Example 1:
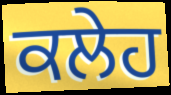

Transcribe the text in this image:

ਕਲੇਹ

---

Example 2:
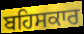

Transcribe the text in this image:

ਬਹਿਸਕਾਰ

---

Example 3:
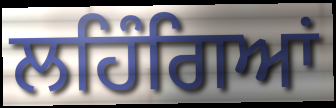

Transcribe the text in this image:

ਲਹਿੰਗਿਆਂ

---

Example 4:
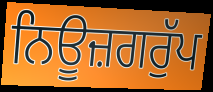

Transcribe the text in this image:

ਨਿਊਜ਼ਗਰੁੱਪ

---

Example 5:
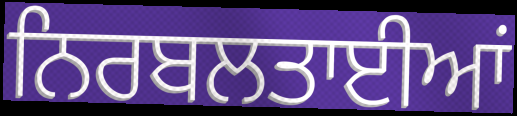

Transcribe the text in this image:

ਨਿਰਬਲਤਾਈਆਂ